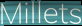
Millets